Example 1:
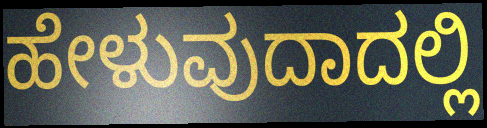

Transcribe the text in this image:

ಹೇಳುವುದಾದಲ್ಲಿ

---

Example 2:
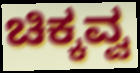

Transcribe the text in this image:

ಚಿಕ್ಕವ್ವ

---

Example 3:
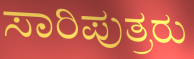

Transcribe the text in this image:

ಸಾರಿಪುತ್ರರು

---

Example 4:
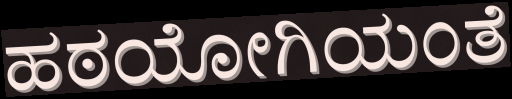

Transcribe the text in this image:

ಹಠಯೋಗಿಯಂತೆ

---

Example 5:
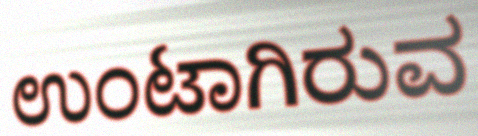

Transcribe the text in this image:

ಉಂಟಾಗಿರುವ